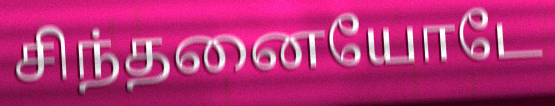
சிந்தனையோடே